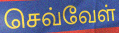
செவ்வேள்